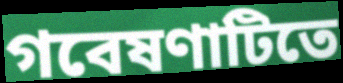
গবেষণাটিতে